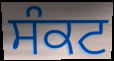
ਸੰਕਟ